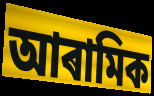
আৰামিক